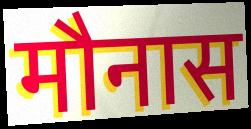
मौनास